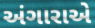
અંગારાએ